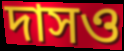
দাসও